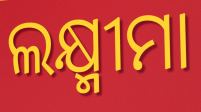
ଲକ୍ଷ୍ମୀମା